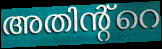
അതിന്റ്റെ